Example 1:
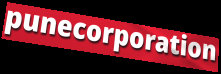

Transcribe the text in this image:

punecorporation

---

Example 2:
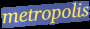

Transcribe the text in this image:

metropolis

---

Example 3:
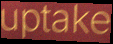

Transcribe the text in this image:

uptake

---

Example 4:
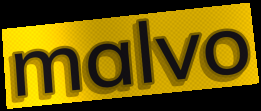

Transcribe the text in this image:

malvo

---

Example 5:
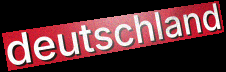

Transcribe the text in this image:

deutschland